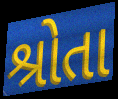
શ્રોતા